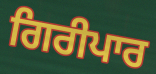
ਗਿਰੀਪਾਰ